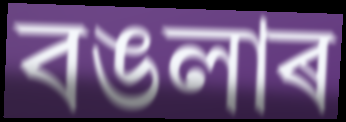
বঙলাৰ